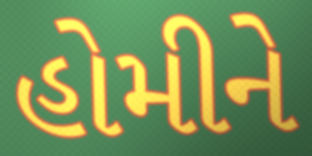
હોમીને